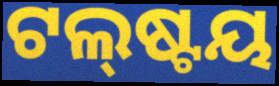
ଟଲ୍‌ଷ୍ଟୟ